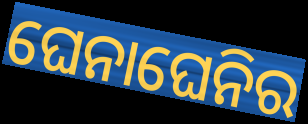
ଘେନାଘେନିର